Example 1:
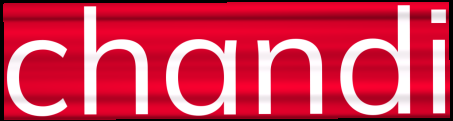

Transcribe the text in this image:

chandi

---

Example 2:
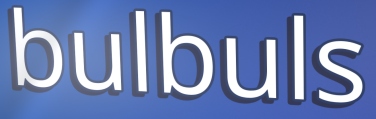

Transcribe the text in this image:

bulbuls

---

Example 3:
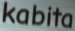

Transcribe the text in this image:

kabita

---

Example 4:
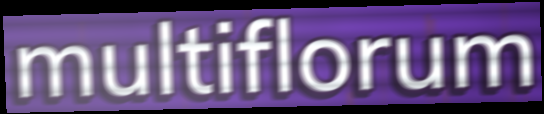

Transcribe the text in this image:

multiflorum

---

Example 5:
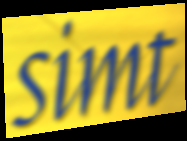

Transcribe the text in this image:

simt